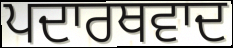
ਪਦਾਰਥਵਾਦ